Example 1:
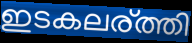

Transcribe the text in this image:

ഇടകലര്ത്തി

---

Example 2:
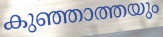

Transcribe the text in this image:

കുഞ്ഞാത്തയും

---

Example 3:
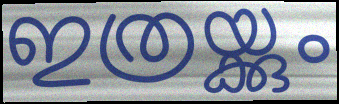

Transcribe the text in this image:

ഇത്രയ്ക്കും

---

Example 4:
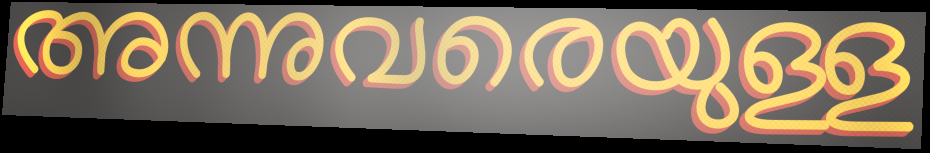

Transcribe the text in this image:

അന്നുവരെയുള്ള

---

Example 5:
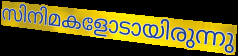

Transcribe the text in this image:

സിനിമകളോടായിരുന്നു